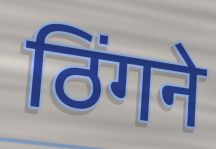
ठिंगने